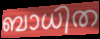
ബാധിത